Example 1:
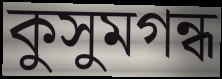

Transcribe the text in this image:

কুসুমগন্ধ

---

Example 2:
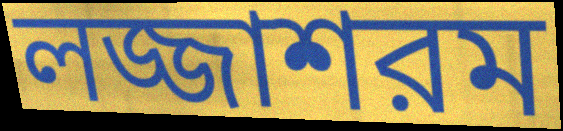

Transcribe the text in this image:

লজ্জাশরম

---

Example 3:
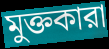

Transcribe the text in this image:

মুক্তকারা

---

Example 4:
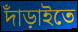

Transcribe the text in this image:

দাঁড়াইতে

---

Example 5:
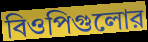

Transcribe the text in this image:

বিওপিগুলোর